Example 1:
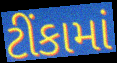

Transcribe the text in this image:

ટીંકામાં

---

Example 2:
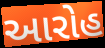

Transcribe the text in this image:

આરોહ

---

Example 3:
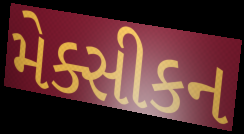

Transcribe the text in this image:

મેક્સીકન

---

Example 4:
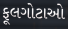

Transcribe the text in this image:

ફૂલગોટાઓ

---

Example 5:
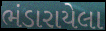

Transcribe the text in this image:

ભંડારાયેલા